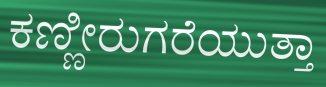
ಕಣ್ಣೀರುಗರೆಯುತ್ತಾ